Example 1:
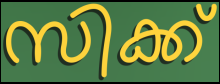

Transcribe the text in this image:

സിക്ക്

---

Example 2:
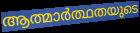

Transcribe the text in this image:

ആത്മാർത്ഥതയുടെ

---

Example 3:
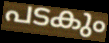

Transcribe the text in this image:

പടകും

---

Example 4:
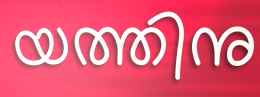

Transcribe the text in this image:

യത്തിനു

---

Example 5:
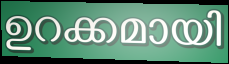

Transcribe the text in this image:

ഉറക്കമായി